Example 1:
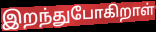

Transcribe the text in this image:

இறந்துபோகிறாள்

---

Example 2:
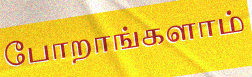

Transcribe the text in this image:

போறாங்களாம்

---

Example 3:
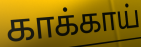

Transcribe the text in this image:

காக்காய்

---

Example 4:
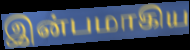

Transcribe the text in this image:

இன்பமாகிய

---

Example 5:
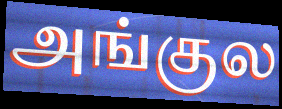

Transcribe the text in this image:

அங்குல